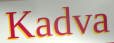
Kadva